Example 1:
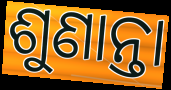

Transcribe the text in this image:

ଶୁଣାନ୍ତା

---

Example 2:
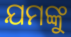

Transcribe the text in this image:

ଯମଙ୍କୁ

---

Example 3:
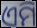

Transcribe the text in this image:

ଏମି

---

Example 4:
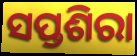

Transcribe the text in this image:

ସପ୍ତଶିରା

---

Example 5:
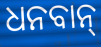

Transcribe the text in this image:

ଧନବାନ୍